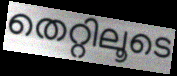
തെറ്റിലൂടെ